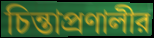
চিন্তাপ্রণালীর